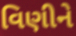
વિણીને